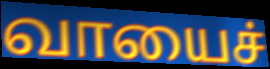
வாயைச்